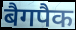
बैगपैक